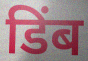
डिंब